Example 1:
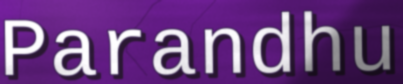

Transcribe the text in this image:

Parandhu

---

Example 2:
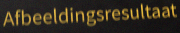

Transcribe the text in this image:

Afbeeldingsresultaat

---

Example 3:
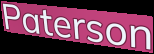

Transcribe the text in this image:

Paterson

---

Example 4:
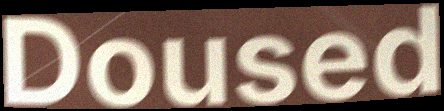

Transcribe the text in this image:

Doused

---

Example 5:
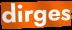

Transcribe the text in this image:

dirges